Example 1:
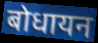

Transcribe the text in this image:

बोधायन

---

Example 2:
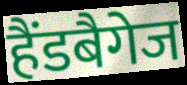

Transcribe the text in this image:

हैंडबैगेज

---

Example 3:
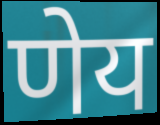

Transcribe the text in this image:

णेय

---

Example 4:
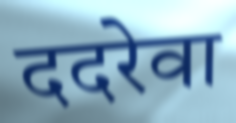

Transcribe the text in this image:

ददरेवा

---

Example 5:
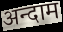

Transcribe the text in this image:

अन्दाम